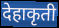
देहाकृती